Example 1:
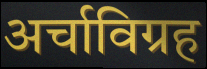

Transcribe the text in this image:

अर्चाविग्रह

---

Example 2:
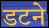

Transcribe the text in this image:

डटने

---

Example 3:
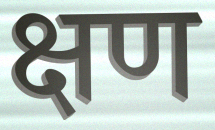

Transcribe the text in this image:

क्षण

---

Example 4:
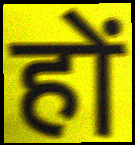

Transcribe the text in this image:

हों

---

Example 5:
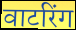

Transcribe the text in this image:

वाटरिंग